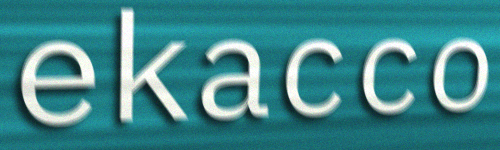
ekacco